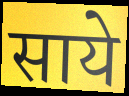
साये